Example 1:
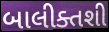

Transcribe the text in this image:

બાલીક્તશી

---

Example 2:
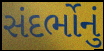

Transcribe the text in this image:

સંદર્ભોનું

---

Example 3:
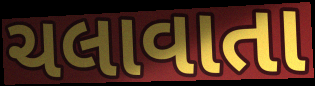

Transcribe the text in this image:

ચલાવાતા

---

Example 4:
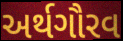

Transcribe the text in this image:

અર્થગૌરવ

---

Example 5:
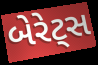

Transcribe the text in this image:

બેરેટ્સ